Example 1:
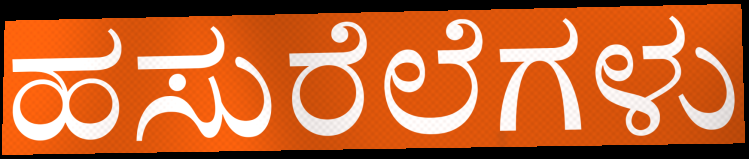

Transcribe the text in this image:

ಹಸುರೆಲೆಗಳು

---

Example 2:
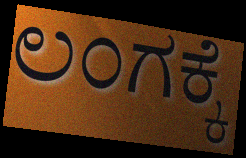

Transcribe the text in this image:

ಲಂಗಕ್ಕೆ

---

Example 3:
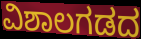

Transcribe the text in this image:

ವಿಶಾಲಗಡದ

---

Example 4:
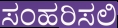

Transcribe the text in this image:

ಸಂಹರಿಸಲಿ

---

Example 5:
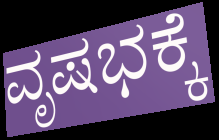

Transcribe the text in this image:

ವೃಷಭಕ್ಕೆ